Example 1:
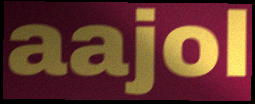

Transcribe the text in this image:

aajol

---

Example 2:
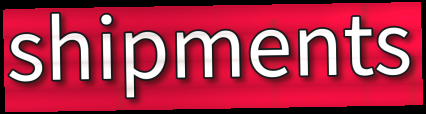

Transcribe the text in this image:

shipments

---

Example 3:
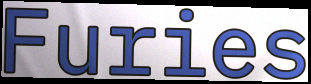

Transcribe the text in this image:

Furies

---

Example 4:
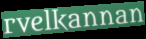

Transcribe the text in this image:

rvelkannan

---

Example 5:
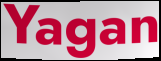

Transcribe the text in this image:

Yagan